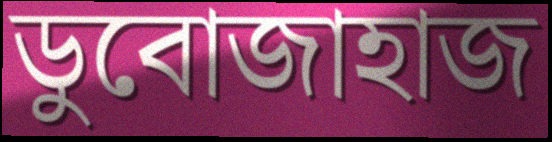
ডুবোজাহাজ